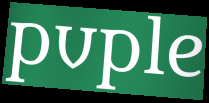
puple